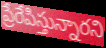
ప్రేరేపిస్తున్నారని